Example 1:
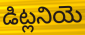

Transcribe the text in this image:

డిట్లనియె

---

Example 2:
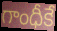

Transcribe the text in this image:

గాంధీకే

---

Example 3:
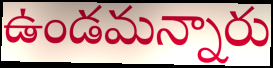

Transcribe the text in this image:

ఉండమన్నారు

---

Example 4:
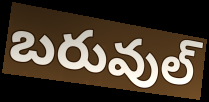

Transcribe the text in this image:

బరువుల్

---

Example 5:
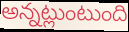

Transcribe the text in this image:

అన్నట్లుంటుంది